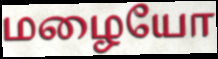
மழையோ